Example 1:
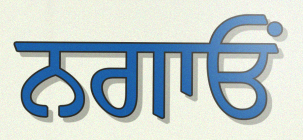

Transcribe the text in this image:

ਨਗਾਓਂ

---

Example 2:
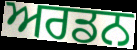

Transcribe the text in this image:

ਅਰਡਨ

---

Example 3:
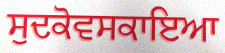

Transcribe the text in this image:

ਸੁਦਕੋਵਸਕਾਇਆ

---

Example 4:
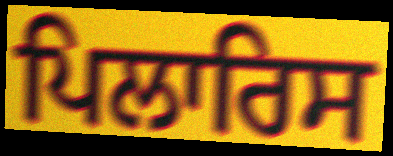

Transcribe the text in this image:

ਪਿਲਾਰਿਸ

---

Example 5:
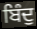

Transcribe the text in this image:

ਬਿੰਦੁ